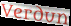
Verdun